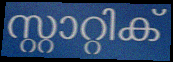
സ്റ്റാറ്റിക്